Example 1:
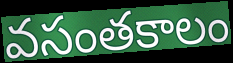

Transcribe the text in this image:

వసంతకాలం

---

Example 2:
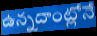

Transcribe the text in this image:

ఉన్నదాంట్లోనే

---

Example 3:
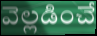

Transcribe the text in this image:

వెల్లడించే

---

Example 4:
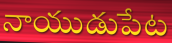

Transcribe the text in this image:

నాయుడుపేట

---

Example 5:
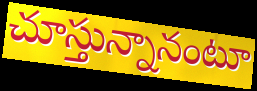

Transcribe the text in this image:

చూస్తున్నానంటూ